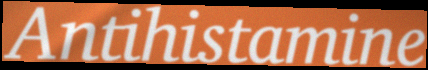
Antihistamine